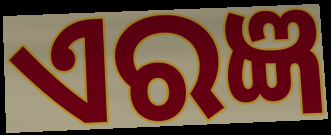
ଏରଜ୍ଞ